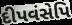
દીપવંસેપિ